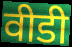
वीडी